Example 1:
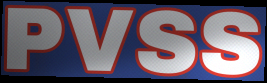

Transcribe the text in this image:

PVSS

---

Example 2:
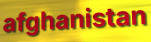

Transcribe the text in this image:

afghanistan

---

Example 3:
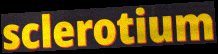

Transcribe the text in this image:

sclerotium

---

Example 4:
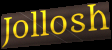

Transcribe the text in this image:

Jollosh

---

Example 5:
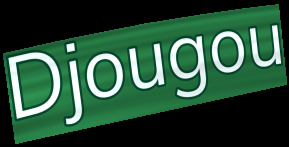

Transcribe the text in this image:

Djougou